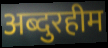
अब्दुरहीम